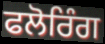
ਫਲੋਰਿੰਗ